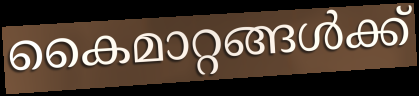
കൈമാറ്റങ്ങൾക്ക്